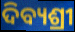
ଦିବ୍ୟଶ୍ରୀ